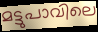
മട്ടുപാവിലെ